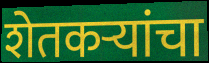
शेतकर्‍यांचा